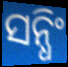
ସନ୍ଧିଂ